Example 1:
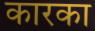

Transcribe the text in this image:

कारका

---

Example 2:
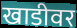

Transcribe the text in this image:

खाडीवर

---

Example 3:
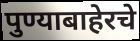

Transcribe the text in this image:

पुण्याबाहेरचे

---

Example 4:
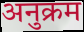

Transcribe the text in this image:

अनुक्रम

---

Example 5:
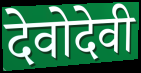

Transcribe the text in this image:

देवोदेवी